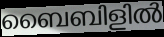
ബൈബിളിൽ